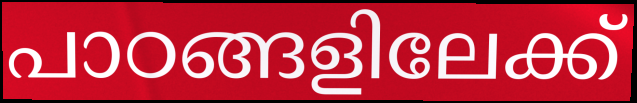
പാഠങ്ങളിലേക്ക്